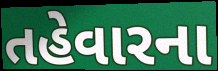
તહેવારના